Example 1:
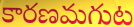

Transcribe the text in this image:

కారణమగుట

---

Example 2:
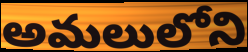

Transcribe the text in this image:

అమలులోని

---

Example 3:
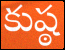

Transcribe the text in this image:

కుష్ఠ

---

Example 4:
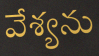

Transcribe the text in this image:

వేశ్యను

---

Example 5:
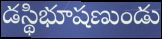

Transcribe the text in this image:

డస్థిభూషణుండు